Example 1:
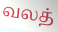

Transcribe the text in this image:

வலத்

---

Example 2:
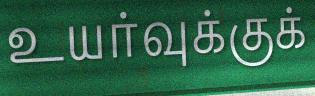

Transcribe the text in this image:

உயர்வுக்குக்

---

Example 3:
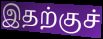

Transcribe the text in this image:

இதற்குச்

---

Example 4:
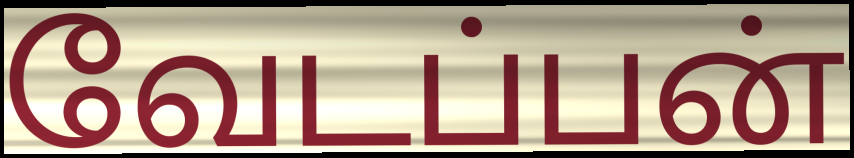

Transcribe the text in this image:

வேடப்பன்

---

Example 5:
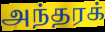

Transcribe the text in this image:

அந்தரக்